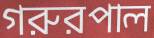
গরুরপাল